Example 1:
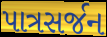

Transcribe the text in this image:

પાત્રસર્જન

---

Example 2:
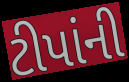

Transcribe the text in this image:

ટીપાંની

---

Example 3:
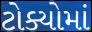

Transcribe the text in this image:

ટોક્યોમાં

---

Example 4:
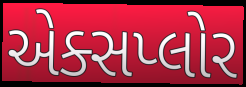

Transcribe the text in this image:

એક્સપ્લોર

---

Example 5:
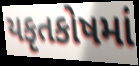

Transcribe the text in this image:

યકૃતકોષમાં